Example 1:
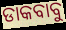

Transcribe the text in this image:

ଡାକବାବୁ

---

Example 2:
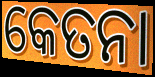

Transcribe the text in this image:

କେତନା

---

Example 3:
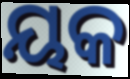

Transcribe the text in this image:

ୟକ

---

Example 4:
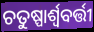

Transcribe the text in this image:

ଚତୁଷ୍ପାର୍ଶ୍ୱବର୍ତ୍ତୀ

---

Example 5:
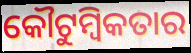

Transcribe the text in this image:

କୌଟୁମ୍ବିକତାର